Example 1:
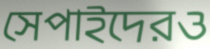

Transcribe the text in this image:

সেপাইদেরও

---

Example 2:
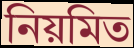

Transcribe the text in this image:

নিয়মিত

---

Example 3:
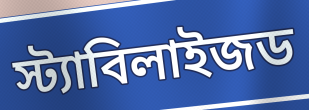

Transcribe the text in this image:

স্ট্যাবিলাইজড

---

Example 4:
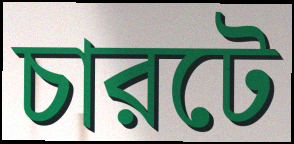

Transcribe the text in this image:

চারটে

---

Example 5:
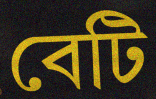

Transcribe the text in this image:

বেটি